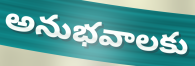
అనుభవాలకు